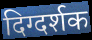
दिग्दर्शक